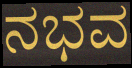
ನಭವ